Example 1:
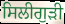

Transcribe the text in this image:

ਸਿਲੀਗੁੜੀ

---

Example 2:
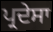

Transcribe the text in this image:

ਪ੍ਰਦੇਸਾ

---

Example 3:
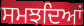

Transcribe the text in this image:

ਸਮਝਦਿਆਂ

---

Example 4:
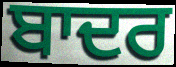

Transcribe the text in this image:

ਬਾਦਰ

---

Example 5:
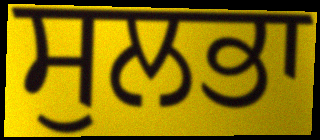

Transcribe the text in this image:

ਸੁਲਭਾ